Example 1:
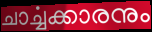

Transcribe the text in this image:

ചാൎച്ചക്കാരനും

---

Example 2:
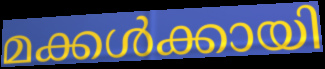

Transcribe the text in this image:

മക്കൾക്കായി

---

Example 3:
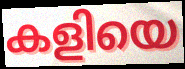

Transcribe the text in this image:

കളിയെ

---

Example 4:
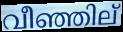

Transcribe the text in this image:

വീഞ്ഞില്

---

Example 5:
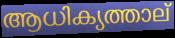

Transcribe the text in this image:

ആധിക്യത്താല്